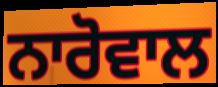
ਨਾਰੋਵਾਲ